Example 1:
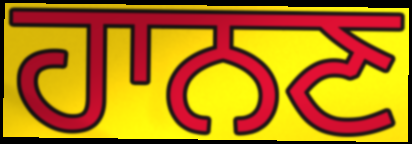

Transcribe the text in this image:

ਹਾਨਣ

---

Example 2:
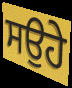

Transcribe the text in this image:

ਸਉਹੇ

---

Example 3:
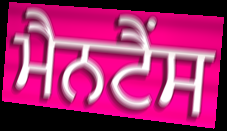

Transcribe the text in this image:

ਮੈਨਟੈਂਸ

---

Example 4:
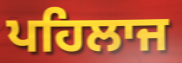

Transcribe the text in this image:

ਪਹਿਲਾਜ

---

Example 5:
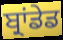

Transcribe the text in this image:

ਬ੍ਰਾਂਡੇਡ